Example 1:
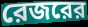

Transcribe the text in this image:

রেজরের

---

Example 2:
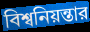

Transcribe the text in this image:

বিশ্বনিয়ন্তার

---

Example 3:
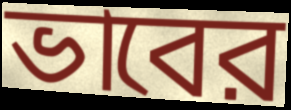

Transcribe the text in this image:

ভাবের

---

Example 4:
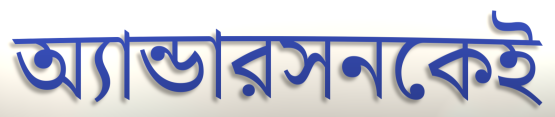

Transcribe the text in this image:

অ্যান্ডারসনকেই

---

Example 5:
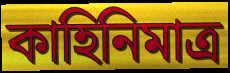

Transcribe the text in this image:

কাহিনিমাত্র